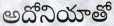
అదోనియాతో